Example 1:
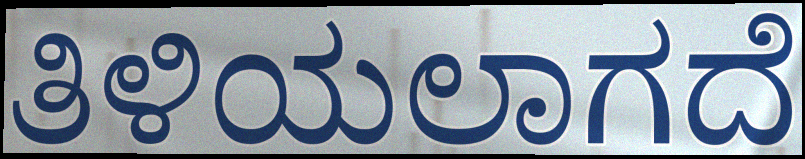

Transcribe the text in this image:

ತಿಳಿಯಲಾಗದೆ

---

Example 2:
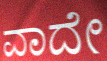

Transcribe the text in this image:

ವಾದೇ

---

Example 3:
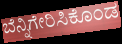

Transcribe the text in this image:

ಬೆನ್ನಿಗೇರಿಸಿಕೊಂಡ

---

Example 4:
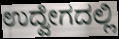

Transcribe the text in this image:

ಉದ್ವೇಗದಲ್ಲಿ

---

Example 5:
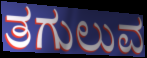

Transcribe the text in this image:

ತಗುಲುವ